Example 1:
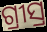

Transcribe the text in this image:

ଗ୍ରୀସ୍ର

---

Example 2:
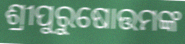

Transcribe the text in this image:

ଶ୍ରୀପୁରୁଷୋତ୍ତମଙ୍କ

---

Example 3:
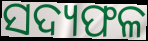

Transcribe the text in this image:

ସଦ୍ୟଫଳ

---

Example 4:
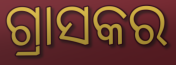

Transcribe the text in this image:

ଗ୍ରାସକର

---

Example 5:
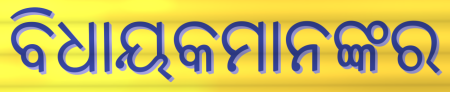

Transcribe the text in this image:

ବିଧାୟକମାନଙ୍କର